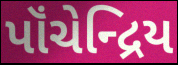
પૉંચેન્દ્રિય